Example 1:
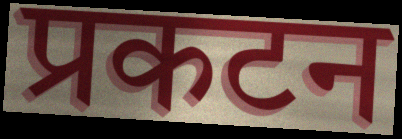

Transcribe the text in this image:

प्रकटन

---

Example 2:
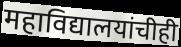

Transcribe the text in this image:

महाविद्यालयांचीही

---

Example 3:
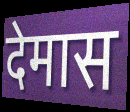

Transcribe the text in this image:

देमास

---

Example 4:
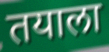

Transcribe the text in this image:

तयाला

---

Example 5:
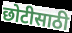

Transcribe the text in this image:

छोटीसाठी